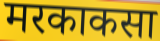
मरकाकसा